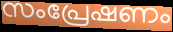
സംപ്രേഷണം